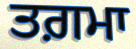
ਤਗ਼ਮਾ